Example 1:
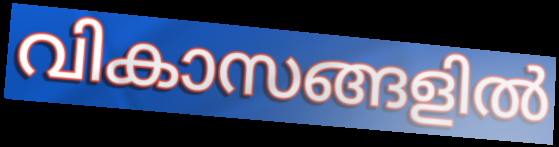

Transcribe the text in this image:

വികാസങ്ങളിൽ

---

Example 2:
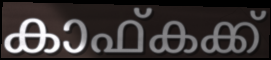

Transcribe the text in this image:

കാഫ്കക്ക്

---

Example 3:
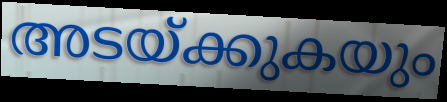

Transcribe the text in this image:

അടയ്ക്കുകയും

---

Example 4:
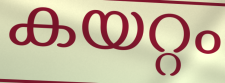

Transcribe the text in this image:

കയറ്റം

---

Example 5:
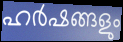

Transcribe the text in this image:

ഹർഷങ്ങളും